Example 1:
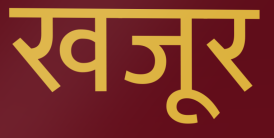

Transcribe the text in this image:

खजूर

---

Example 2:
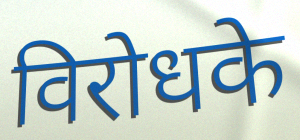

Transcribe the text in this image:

विरोधके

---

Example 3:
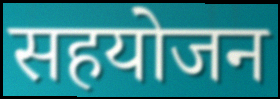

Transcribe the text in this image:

सहयोजन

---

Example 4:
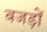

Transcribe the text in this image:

बजड़ों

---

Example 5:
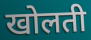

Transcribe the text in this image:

खोलती